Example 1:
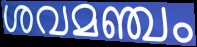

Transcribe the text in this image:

ശവമഞ്ചം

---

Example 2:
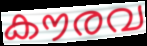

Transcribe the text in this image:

കൗരവ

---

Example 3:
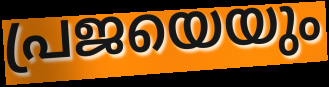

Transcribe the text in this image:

പ്രജയെയും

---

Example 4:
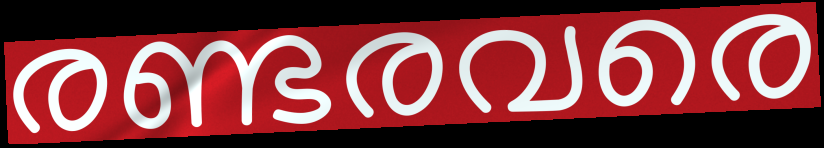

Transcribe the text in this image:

രണ്ടരവരെ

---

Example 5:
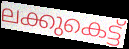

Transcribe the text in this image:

ലക്കുകെട്ട്